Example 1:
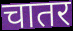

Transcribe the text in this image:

चातर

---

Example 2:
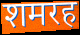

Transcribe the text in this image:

शमरह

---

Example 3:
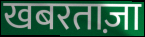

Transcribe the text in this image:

खबरताज़ा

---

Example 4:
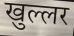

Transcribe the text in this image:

खुल्लर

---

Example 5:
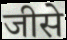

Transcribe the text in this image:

जीसे